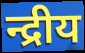
न्द्रीय